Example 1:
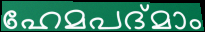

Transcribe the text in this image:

ഹേമപദ്മാം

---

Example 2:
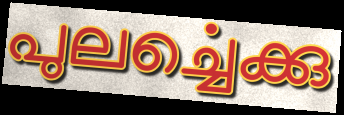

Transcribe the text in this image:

പുലൎച്ചെക്കു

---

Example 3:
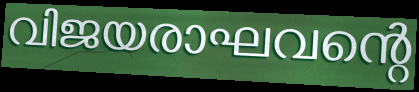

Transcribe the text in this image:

വിജയരാഘവന്റെ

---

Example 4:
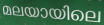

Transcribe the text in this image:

മലയായിലെ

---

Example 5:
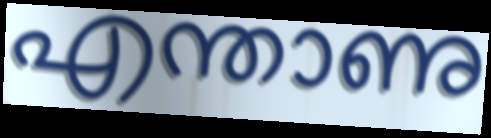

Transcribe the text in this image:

എന്താണു